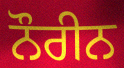
ਨੌਰੀਨ